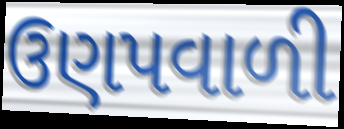
ઉણપવાળી